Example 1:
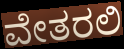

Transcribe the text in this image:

ವೇತರಲಿ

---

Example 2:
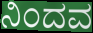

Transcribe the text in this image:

ನಿಂದವ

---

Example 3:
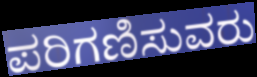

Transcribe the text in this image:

ಪರಿಗಣಿಸುವರು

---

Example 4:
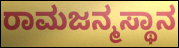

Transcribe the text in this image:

ರಾಮಜನ್ಮಸ್ಥಾನ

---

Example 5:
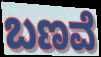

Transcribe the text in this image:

ಬಣವೆ